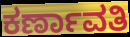
ಕರ್ಣಾವತಿ